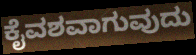
ಕೈವಶವಾಗುವುದು